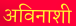
अविनाशी